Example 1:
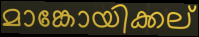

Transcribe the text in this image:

മാങ്കോയിക്കല്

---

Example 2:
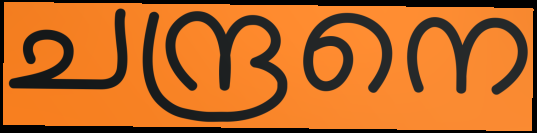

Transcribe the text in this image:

ചന്ദ്രനെ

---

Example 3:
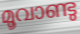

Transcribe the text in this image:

മൂവാണ്ടു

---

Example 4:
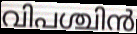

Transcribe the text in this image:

വിപശ്ചിൻ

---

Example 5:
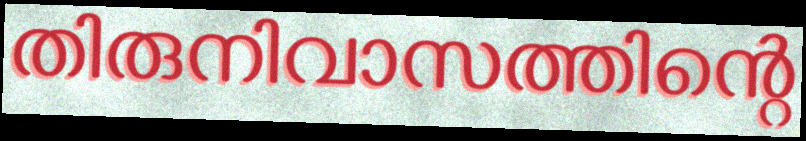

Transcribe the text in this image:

തിരുനിവാസത്തിന്റെ